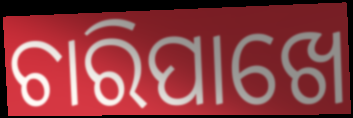
ଚାରିପାଖେ